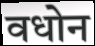
वधोन